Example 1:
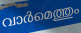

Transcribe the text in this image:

വാർമെത്തും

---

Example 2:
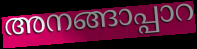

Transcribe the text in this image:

അനങ്ങാപ്പാറ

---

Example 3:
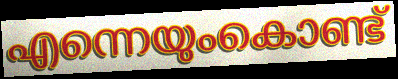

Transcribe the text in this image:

എന്നെയുംകൊണ്ട്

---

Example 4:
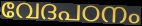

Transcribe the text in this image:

വേദപഠനം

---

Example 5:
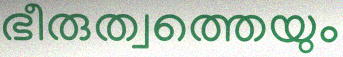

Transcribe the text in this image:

ഭീരുത്വത്തെയും